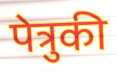
पेत्रुकी